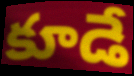
కూడే